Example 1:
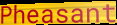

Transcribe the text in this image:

Pheasant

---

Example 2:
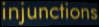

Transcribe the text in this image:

injunctions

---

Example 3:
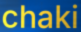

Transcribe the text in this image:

chaki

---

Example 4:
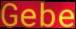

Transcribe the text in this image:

Gebe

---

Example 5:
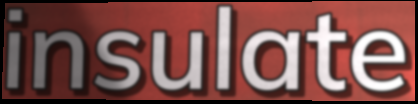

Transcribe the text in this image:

insulate